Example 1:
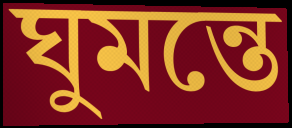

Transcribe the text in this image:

ঘুমন্তে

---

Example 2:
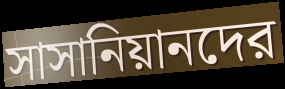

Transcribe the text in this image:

সাসানিয়ানদের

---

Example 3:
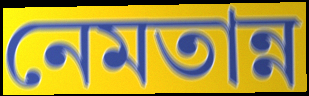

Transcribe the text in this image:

নেমতান্ন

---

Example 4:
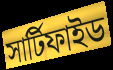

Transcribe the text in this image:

সার্টিফাইড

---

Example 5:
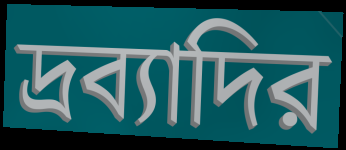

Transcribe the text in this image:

দ্রব্যাদির